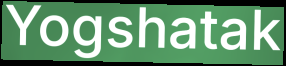
Yogshatak